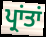
ਪ੍ਰਾਂਤਾਂ